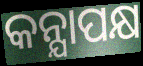
କନ୍ଯାପକ୍ଷ